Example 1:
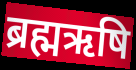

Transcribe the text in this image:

ब्रह्मऋषि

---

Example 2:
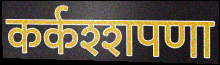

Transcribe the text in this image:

कर्कश्शपणा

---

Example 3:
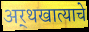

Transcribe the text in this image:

अर्थखात्याचे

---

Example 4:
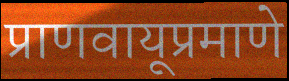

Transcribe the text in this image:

प्राणवायूप्रमाणे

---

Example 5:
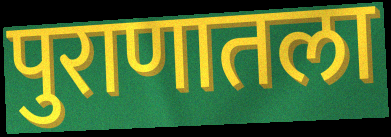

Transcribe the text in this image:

पुराणातला